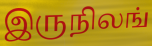
இருநிலங்